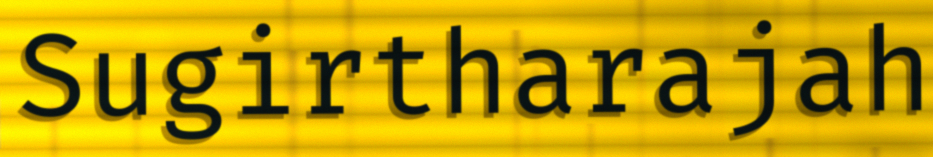
Sugirtharajah